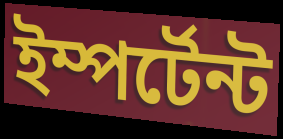
ইম্পর্টেন্ট